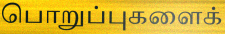
பொறுப்புகளைக்